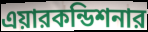
এয়ারকন্ডিশনার